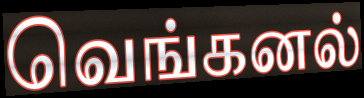
வெங்கனல்